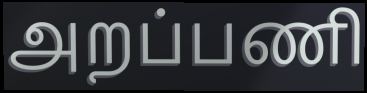
அறப்பணி